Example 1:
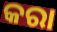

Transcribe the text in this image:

କରା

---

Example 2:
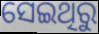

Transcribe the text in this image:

ସେଇଥିରୁ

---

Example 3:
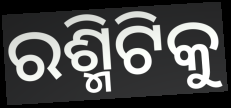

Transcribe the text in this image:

ରଶ୍ମିଟିକୁ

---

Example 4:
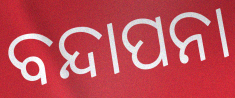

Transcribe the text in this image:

ବନ୍ଦାପନା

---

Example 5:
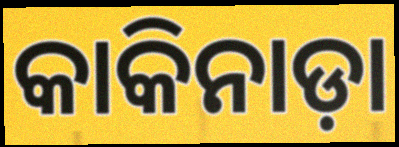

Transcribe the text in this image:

କାକିନାଡ଼ା